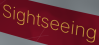
Sightseeing